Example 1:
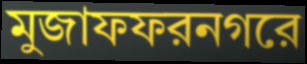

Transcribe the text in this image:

মুজাফফরনগরে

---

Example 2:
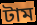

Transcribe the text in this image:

টাম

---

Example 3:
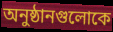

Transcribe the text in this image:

অনুষ্ঠানগুলোকে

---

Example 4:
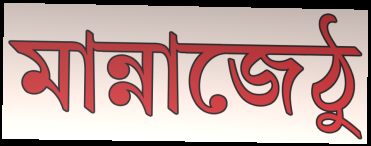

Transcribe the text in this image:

মান্নাজেঠু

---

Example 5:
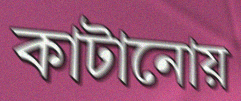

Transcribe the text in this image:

কাটানোয়